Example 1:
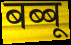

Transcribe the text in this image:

बब्बू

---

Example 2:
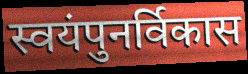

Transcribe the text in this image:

स्वयंपुनर्विकास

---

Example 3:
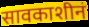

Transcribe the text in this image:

सावकाशीनं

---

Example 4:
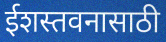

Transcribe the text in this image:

ईशस्तवनासाठी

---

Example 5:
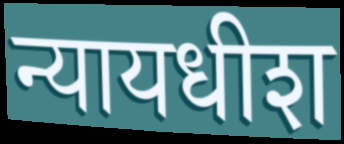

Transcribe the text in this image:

न्यायधीश